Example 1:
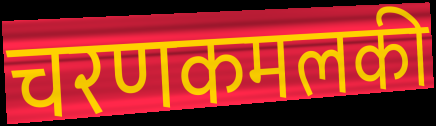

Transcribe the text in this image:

चरणकमलकी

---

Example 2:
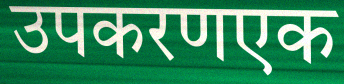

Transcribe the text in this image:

उपकरणएक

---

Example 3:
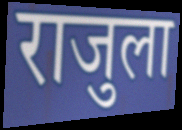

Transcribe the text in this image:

राजुला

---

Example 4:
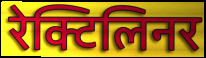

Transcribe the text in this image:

रेक्टिलिनर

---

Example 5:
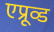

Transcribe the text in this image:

एप्रूव्ड